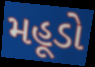
મહૂડો